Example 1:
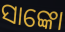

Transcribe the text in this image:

ସାଙ୍କୋ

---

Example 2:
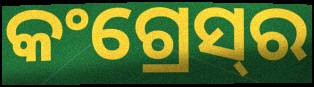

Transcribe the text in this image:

କଂଗ୍ରେସ୍‌ର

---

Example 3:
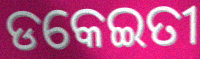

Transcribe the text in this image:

ଡକେଇତୀ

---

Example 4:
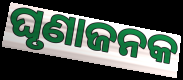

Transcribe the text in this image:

ଘୃଣାଜନକ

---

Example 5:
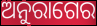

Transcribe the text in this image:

ଅନୁରାଗେର